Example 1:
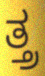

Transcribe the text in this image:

ತ್ತ್ರ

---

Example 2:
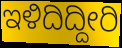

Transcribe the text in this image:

ಇಳಿದಿದ್ದೀರಿ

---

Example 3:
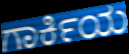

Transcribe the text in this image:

ಗಾರ್ಕಿಯ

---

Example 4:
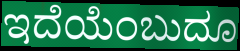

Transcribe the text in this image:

ಇದೆಯೆಂಬುದೂ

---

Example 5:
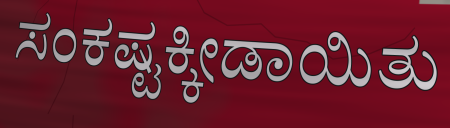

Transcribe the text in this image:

ಸಂಕಷ್ಟಕ್ಕೀಡಾಯಿತು